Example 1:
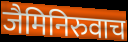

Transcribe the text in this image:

जैमिनिरुवाच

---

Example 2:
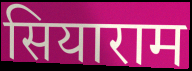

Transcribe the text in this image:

सियाराम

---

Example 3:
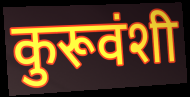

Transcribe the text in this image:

कुरूवंशी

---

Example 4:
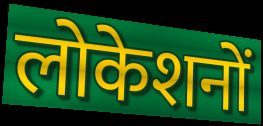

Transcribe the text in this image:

लोकेशनों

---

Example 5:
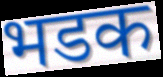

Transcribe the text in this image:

भडक